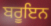
ਬਰੂਇਨ